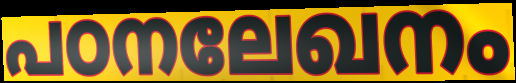
പഠനലേഖനം